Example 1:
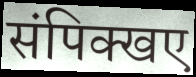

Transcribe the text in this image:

संपिक्खए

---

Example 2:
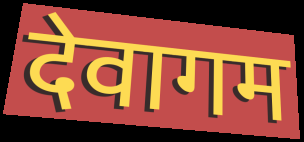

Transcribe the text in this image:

देवागम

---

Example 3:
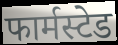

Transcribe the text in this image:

फार्मस्टेड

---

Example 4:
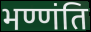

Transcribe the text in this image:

भण्णंति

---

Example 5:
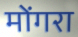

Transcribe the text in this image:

मोंगरा